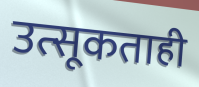
उत्सूकताही